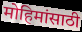
मोहिमांसाठी